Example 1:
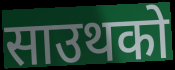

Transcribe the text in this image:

साउथको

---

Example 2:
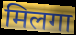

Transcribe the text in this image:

मिलगा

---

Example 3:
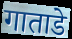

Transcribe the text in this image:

गाताडे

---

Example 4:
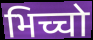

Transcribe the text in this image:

भिच्चो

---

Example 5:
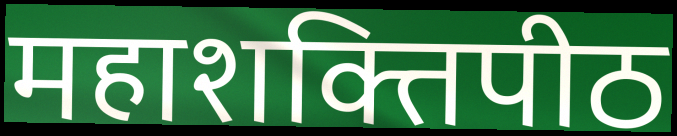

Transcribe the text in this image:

महाशक्तिपीठ